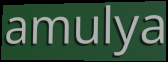
amulya